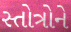
સ્તોત્રોને